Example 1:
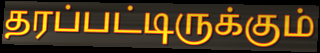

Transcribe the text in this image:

தரப்பட்டிருக்கும்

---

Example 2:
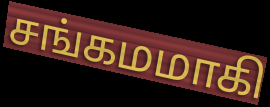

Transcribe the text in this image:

சங்கமமாகி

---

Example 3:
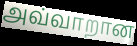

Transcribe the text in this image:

அவ்வாறான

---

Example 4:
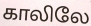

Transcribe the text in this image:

காலிலே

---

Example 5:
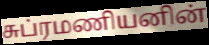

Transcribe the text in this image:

சுப்ரமணியனின்